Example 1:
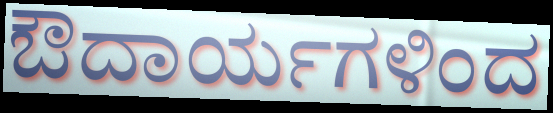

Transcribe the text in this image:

ಔದಾರ್ಯಗಳಿಂದ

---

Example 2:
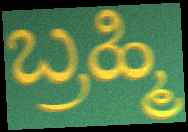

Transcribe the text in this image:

ಬ್ರಹ್ಮಿ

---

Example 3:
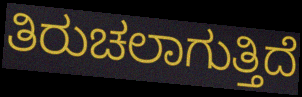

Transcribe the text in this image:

ತಿರುಚಲಾಗುತ್ತಿದೆ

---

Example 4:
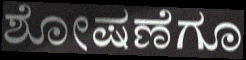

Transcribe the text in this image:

ಶೋಷಣೆಗೂ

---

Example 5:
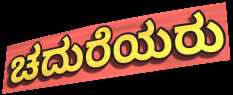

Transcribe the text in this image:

ಚದುರೆಯರು